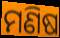
ମଣିଷ